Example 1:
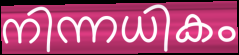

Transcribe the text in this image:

നിന്നധികം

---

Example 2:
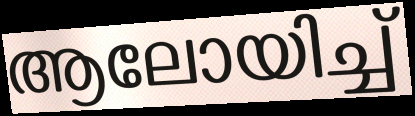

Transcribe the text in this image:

ആലോയിച്ച്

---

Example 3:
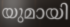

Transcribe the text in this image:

യുമായി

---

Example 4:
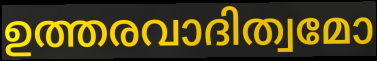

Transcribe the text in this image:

ഉത്തരവാദിത്വമോ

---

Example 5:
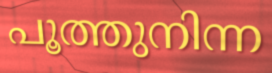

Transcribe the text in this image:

പൂത്തുനിന്ന